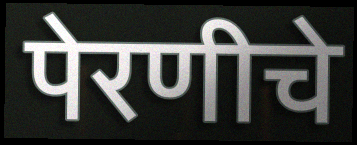
पेरणीचे